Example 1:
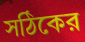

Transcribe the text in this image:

সঠিকের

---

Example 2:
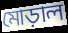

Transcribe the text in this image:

মোড়াল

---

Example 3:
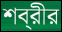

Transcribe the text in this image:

শব্‌রীর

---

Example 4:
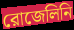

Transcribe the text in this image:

রোজেলিনি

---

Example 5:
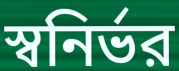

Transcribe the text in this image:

স্বনির্ভর